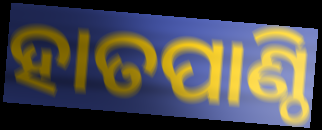
ହାତପାଣ୍ଠି